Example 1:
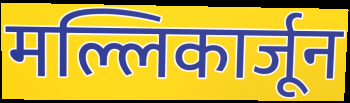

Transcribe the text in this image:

मल्लिकार्जून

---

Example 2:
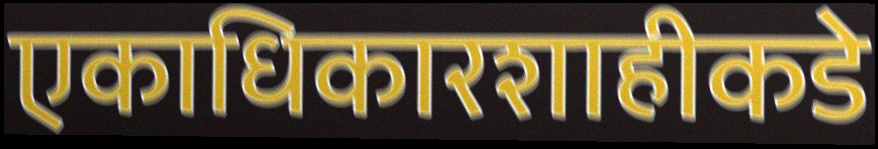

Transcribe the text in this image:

एकाधिकारशाहीकडे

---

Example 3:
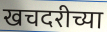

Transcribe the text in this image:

खचदरीच्या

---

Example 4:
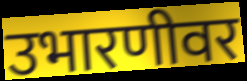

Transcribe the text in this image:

उभारणीवर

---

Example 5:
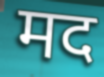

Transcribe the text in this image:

मद